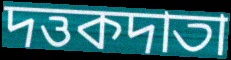
দত্তকদাতা